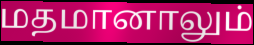
மதமானாலும்